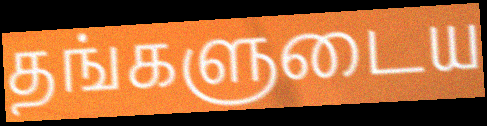
தங்களுடைய